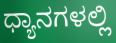
ಧ್ಯಾನಗಳಲ್ಲಿ